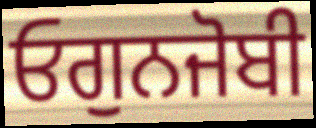
ਓਗੁਨਜੋਬੀ